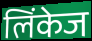
लिंकेज